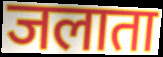
जलाता